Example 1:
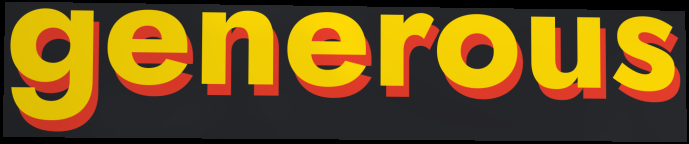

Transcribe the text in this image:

generous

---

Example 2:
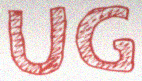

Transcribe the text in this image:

UG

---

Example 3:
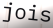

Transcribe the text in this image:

jois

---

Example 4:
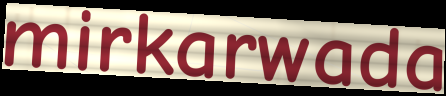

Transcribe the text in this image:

mirkarwada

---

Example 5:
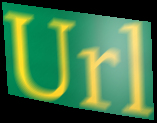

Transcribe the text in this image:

Url